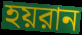
হয়রান